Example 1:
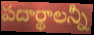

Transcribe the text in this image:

పదార్థాలన్నీ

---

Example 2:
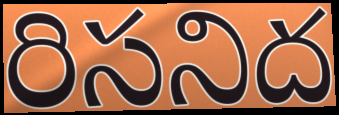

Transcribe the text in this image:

రిసనిద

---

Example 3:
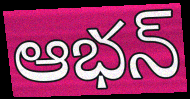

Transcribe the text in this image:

ఆభన్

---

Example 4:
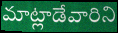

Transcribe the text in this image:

మాట్లాడేవారిని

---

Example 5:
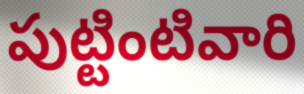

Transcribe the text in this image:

పుట్టింటివారి